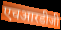
एचआरडीजी